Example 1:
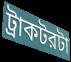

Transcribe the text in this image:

ট্রাকটরটা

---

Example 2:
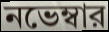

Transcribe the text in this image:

নভেম্বার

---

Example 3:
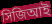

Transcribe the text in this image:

সিজিআই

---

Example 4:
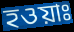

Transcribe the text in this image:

হওয়াঃ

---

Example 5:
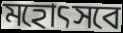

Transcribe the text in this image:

মহোৎসবে